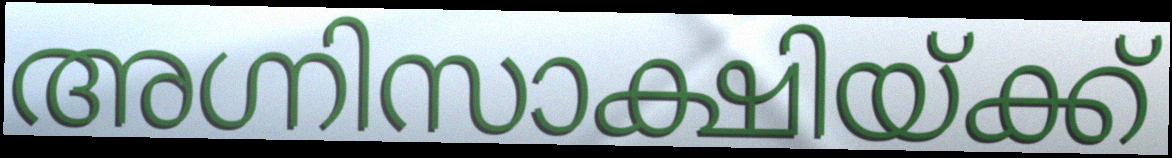
അഗ്നിസാക്ഷിയ്ക്ക്